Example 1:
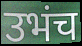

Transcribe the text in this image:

उभंच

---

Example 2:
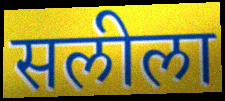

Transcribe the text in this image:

सलीला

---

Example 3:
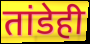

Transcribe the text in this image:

तांडेही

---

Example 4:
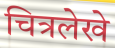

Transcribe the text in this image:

चित्रलेखे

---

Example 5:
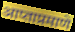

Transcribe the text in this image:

आप्ताप्रमाणे